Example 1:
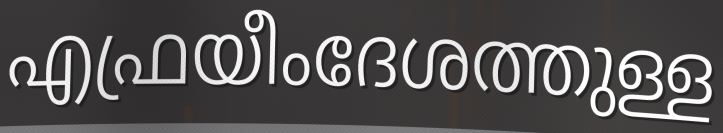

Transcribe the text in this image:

എഫ്രയീംദേശത്തുള്ള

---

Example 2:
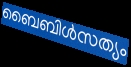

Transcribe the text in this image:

ബൈബിൾസത്യം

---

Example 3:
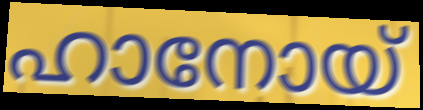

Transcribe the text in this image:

ഹാനോയ്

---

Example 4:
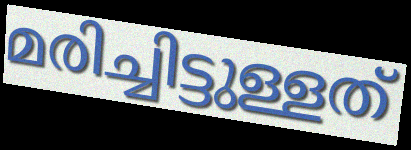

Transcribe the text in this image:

മരിച്ചിട്ടുള്ളത്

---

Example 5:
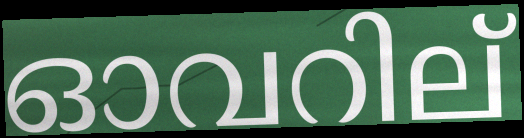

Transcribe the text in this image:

ഓവറില്